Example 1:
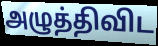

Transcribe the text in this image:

அழுத்திவிட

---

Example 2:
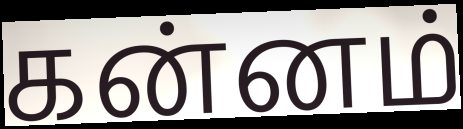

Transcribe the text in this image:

கன்னம்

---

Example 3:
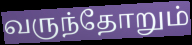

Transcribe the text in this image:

வருந்தோறும்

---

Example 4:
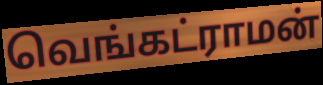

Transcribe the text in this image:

வெங்கட்ராமன்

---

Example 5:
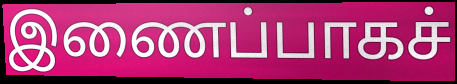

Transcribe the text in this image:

இணைப்பாகச்